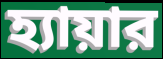
হ্যায়ার